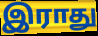
இராது